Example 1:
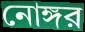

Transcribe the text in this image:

নোঙ্গর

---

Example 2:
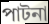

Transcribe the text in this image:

পাটনা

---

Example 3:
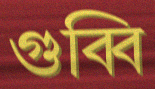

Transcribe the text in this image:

গুব্বি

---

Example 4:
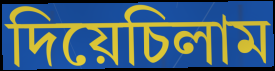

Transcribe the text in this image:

দিয়েচিলাম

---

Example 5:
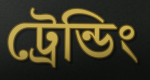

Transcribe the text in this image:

ট্রেন্ডিং